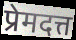
प्रेमदत्त